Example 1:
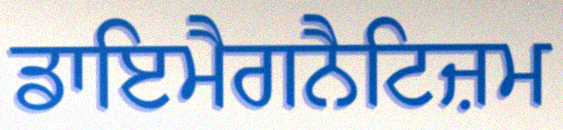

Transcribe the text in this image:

ਡਾਇਮੈਗਨੈਟਿਜ਼ਮ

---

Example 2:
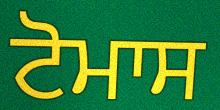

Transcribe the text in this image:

ਟੋਮਾਸ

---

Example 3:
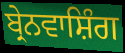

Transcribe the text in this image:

ਬ੍ਰੇਨਵਾਸ਼ਿੰਗ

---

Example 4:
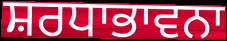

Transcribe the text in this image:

ਸ਼ਰਧਾਭਾਵਨਾ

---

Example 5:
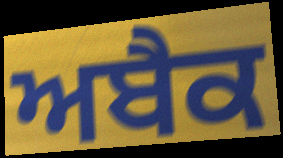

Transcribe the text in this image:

ਅਬੈਕ